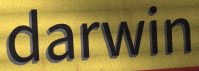
darwin